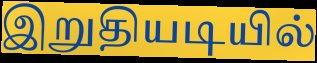
இறுதியடியில்